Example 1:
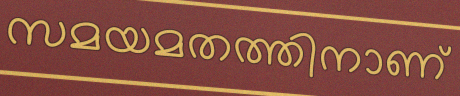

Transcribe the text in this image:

സമയമതത്തിനാണ്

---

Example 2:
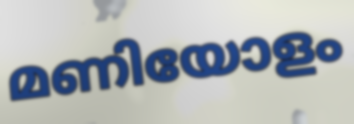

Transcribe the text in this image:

മണിയോളം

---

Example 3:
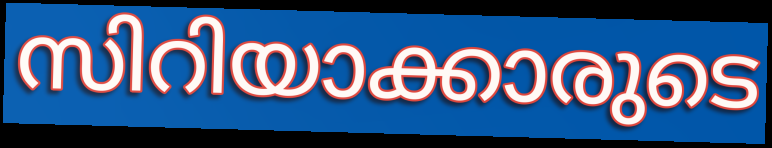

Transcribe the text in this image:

സിറിയാക്കാരുടെ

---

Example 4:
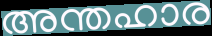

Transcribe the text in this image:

അന്തഹാര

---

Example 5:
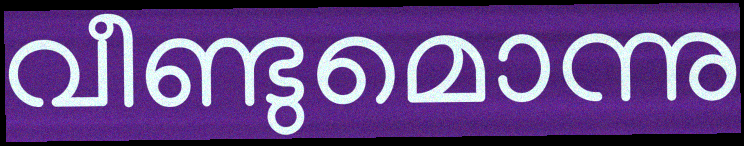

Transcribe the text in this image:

വീണ്ടുമൊന്നു